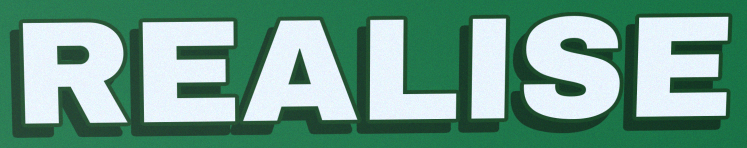
REALISE